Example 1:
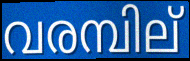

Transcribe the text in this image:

വരമ്പില്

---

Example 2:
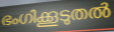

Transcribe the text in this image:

ഭംഗിക്കൂടുതൽ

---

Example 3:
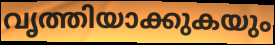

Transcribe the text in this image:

വൃത്തിയാക്കുകയും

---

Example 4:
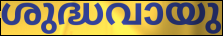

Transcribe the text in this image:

ശുദ്ധവായു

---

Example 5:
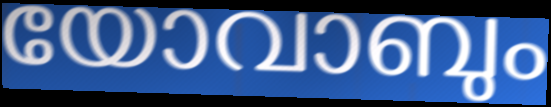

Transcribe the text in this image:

യോവാബും